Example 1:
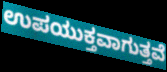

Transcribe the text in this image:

ಉಪಯುಕ್ತವಾಗುತ್ತವೆ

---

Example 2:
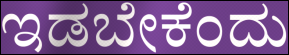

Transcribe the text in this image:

ಇಡಬೇಕೆಂದು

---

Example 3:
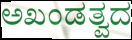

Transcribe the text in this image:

ಅಖಂಡತ್ವದ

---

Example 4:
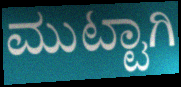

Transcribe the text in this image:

ಮುಟ್ಟಾಗಿ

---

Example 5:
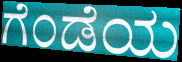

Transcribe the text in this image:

ಗೆಂಡೆಯ